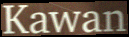
Kawan